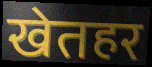
खेतहर